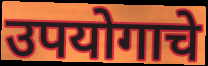
उपयोगाचे